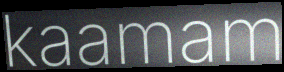
kaamam